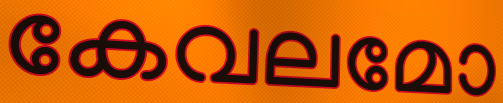
കേവലമോ